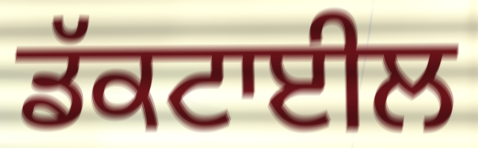
ਡੱਕਟਾਈਲ